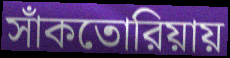
সাঁকতোরিয়ায়